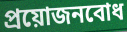
প্রয়োজনবোধ